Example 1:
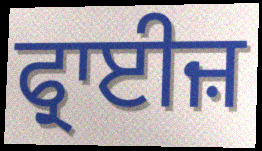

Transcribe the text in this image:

ਫ੍ਰਾਈਜ਼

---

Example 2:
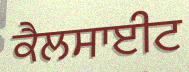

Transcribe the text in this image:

ਕੈਲਸਾਈਟ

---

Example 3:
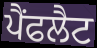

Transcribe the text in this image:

ਪੈਂਫਲੈਟ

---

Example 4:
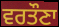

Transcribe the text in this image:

ਵਰਤੌਣਾ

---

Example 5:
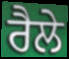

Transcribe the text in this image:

ਰੈਲੇ